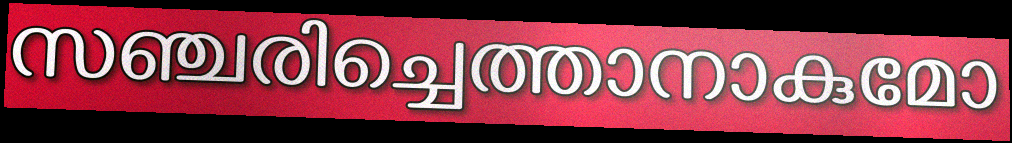
സഞ്ചരിച്ചെത്താനാകുമോ